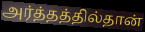
அர்த்தத்தில்தான்